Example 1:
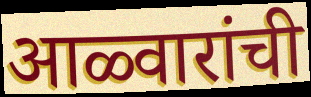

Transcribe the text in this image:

आळ्वारांची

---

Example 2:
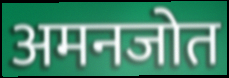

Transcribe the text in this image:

अमनजोत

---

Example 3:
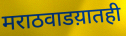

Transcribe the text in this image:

मराठवाडय़ातही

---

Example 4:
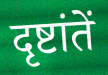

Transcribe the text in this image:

दृष्टांतें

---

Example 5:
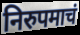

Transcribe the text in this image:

निरुपमाचं